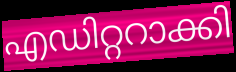
എഡിറ്ററാക്കി